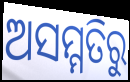
ଅସମ୍ମତିରୁ